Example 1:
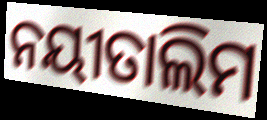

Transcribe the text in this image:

ନୟୀତାଲିମ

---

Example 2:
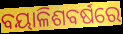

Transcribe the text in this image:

ବୟାଳିଶବର୍ଷରେ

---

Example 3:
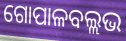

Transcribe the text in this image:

ଗୋପାଳବଲ୍ଲଭ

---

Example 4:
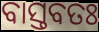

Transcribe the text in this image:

ବାସ୍ତବତଃ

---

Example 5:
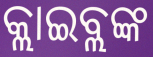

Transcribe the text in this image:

କ୍ଲାଇବ୍ଲଙ୍କ